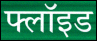
फ्लॉइड